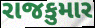
રાજકુમાર